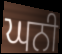
ਘਨੀ